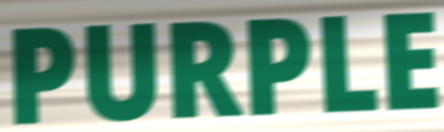
PURPLE